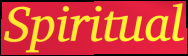
Spiritual